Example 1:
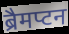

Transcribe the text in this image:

ब्रैमप्टन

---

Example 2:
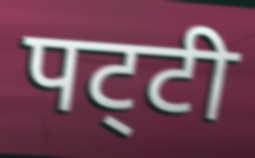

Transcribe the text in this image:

पट्‌टी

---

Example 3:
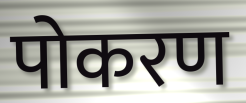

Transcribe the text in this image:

पोकरण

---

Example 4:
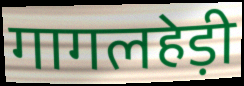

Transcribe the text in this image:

गागलहेड़ी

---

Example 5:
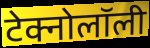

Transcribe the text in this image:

टेक्नोलॉली